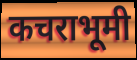
कचराभूमी